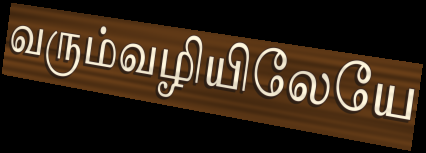
வரும்வழியிலேயே